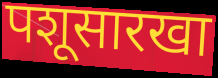
पशूसारखा